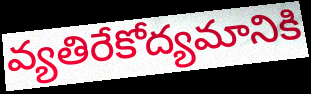
వ్యతిరేకోద్యమానికి